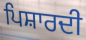
ਪਿਸ਼ਾਰਦੀ